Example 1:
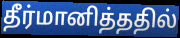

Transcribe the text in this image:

தீர்மானித்ததில்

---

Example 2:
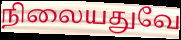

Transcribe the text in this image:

நிலையதுவே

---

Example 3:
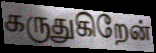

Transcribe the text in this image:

கருதுகிறேன்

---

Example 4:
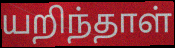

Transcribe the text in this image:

யறிந்தாள்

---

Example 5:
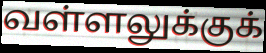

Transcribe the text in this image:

வள்ளலுக்குக்